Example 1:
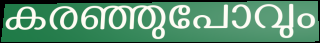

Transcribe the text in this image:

കരഞ്ഞുപോവും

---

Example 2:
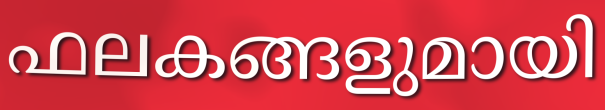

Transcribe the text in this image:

ഫലകങ്ങളുമായി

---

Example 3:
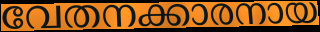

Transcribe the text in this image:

വേതനക്കാരനായ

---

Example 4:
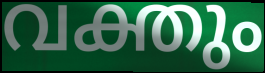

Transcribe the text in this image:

വക്തും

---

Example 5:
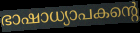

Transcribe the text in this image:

ഭാഷാധ്യാപകന്റെ